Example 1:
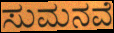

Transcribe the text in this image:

ಸುಮನವೆ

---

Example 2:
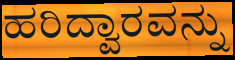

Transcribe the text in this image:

ಹರಿದ್ವಾರವನ್ನು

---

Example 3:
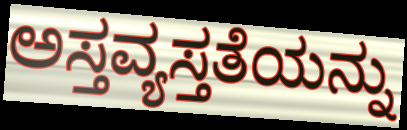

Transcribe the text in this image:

ಅಸ್ತವ್ಯಸ್ತತೆಯನ್ನು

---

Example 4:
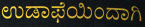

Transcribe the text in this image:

ಉಡಾಫೆಯಿಂದಾಗಿ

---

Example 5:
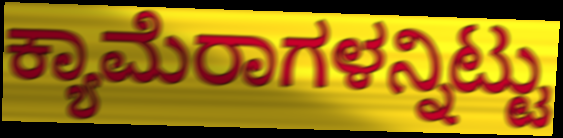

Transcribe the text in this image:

ಕ್ಯಾಮೆರಾಗಳನ್ನಿಟ್ಟು